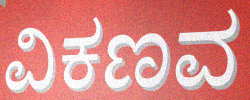
ವಿಕಣವ